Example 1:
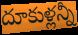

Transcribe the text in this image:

దూకుళ్లన్నీ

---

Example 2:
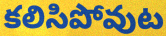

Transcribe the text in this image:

కలిసిపోవుట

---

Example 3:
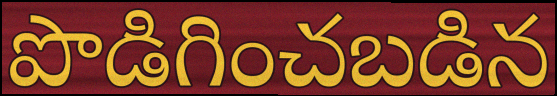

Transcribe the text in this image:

పొడిగించబడిన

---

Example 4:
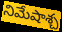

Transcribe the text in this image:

నిమేషాశ్చ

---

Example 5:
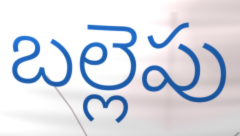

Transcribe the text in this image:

బల్లెపు